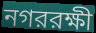
নগররক্ষী